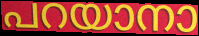
പറയാനാ